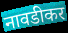
नावडीकर